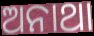
ଅନାଥା